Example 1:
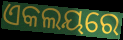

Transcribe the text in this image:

ଏକଲୟରେ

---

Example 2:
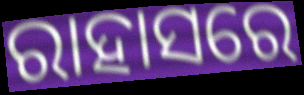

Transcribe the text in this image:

ରାହାସରେ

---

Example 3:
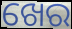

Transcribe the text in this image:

ଖେର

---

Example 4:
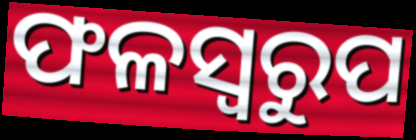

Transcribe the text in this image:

ଫଳସ୍ୱରୁପ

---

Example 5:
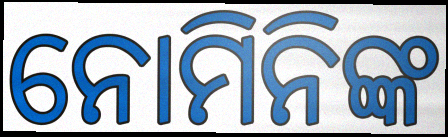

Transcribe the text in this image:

ନୋମିନିଙ୍କ